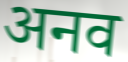
अनव